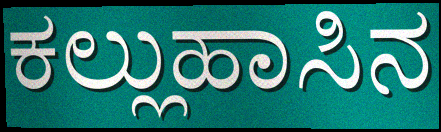
ಕಲ್ಲುಹಾಸಿನ